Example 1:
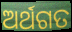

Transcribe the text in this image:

ଅର୍ଥଗତ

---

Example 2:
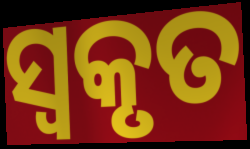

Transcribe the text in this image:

ସ୍ୱକୃତ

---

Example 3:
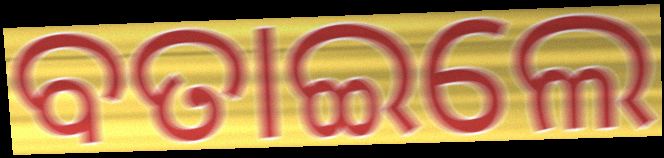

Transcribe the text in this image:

ବତାଇଲେ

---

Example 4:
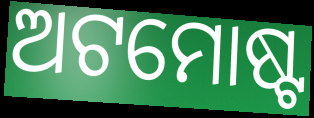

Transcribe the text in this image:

ଅଟମୋଷ୍ଟ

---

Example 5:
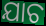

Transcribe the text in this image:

ଯାଚ